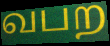
வபற